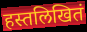
हस्तलिखितं